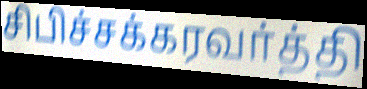
சிபிச்சக்கரவர்த்தி